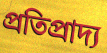
প্ৰতিপ্ৰাদ্য